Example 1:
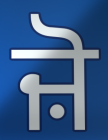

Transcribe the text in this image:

ਜ਼ੋ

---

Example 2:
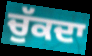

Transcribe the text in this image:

ਚੁੱਕਦਾ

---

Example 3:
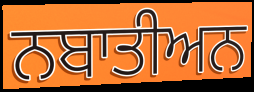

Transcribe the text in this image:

ਨਬਾਤੀਅਨ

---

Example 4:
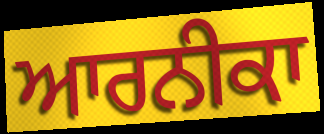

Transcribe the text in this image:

ਆਰਨੀਕਾ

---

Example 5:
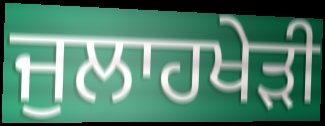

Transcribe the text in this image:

ਜੁਲਾਹਖੇੜੀ